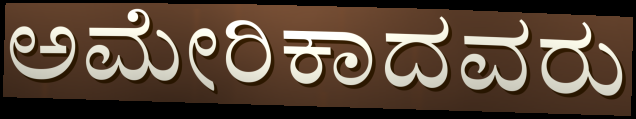
ಅಮೇರಿಕಾದವರು